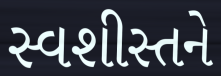
સ્વશીસ્તને